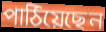
পাঠিয়েছেন